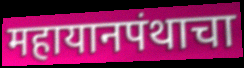
महायानपंथाचा